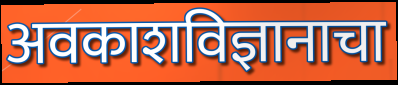
अवकाशविज्ञानाचा